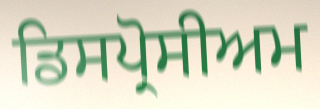
ਡਿਸਪ੍ਰੋਸੀਅਮ